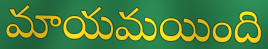
మాయమయింది